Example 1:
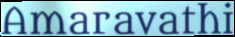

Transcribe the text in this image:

Amaravathi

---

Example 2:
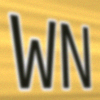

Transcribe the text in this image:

WN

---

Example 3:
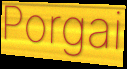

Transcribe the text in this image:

Porgai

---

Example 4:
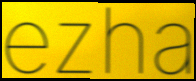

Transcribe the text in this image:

ezha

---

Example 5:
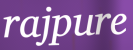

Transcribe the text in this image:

rajpure